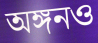
অঙ্গনও